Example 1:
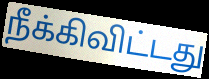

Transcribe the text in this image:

நீக்கிவிட்டது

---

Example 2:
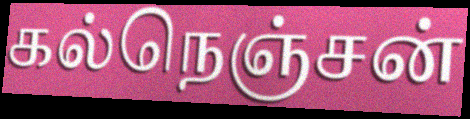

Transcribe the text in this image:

கல்நெஞ்சன்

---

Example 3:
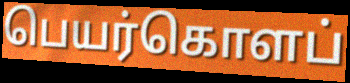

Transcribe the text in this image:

பெயர்கொளப்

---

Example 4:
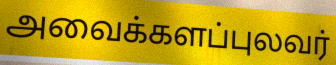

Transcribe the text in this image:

அவைக்களப்புலவர்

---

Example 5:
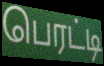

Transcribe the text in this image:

பெரட்டி